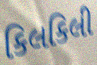
કિલકિલી